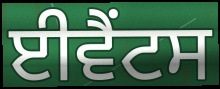
ਈਵੈਂਟਸ